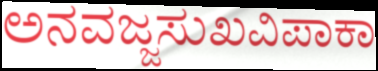
ಅನವಜ್ಜಸುಖವಿಪಾಕಾ